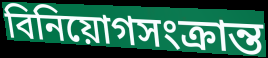
বিনিয়োগসংক্রান্ত